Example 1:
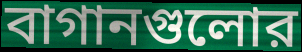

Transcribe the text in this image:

বাগানগুলোর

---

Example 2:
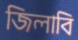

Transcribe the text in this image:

জিলাবি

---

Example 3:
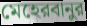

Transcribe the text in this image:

মেহেরবানুর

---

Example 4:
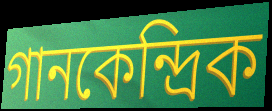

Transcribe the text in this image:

গানকেন্দ্রিক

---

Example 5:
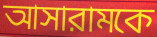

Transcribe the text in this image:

আসারামকে